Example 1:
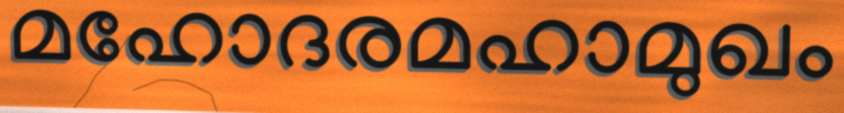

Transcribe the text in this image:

മഹോദരമഹാമുഖം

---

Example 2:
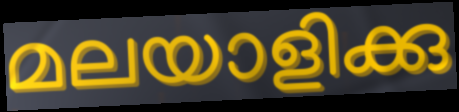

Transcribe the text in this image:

മലയാളിക്കു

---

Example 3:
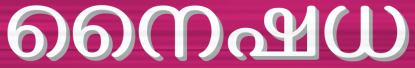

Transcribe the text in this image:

നൈഷധ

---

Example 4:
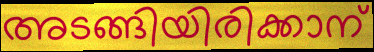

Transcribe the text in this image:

അടങ്ങിയിരിക്കാന്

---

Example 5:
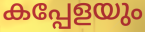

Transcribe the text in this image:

കപ്പേളയും